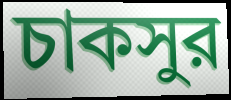
চাকসুর